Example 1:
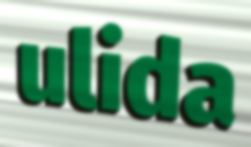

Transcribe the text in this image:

ulida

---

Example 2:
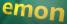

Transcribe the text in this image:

emon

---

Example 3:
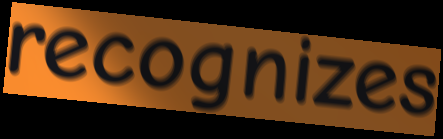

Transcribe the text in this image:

recognizes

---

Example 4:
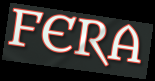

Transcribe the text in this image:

FERA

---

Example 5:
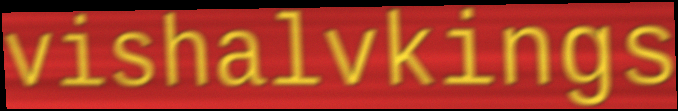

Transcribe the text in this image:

vishalvkings